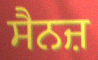
ਸੈਨਜ਼